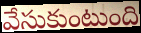
వేసుకుంటుంది